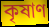
কৃষাণ